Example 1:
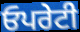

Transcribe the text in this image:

ਓਪਰੇਟੀ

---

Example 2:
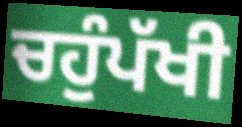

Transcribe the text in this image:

ਚਹੁੰਪੱਖੀ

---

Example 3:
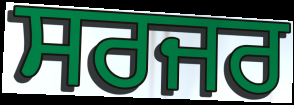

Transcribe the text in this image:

ਸਰਜਰ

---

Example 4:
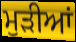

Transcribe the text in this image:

ਮੁੜੀਆਂ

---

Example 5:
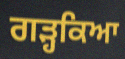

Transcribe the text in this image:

ਗੜ੍ਹਕਿਆ